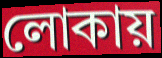
লোকায়